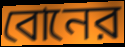
বোনের